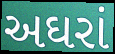
અઘરાં